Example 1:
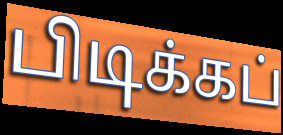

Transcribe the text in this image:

பிடிக்கப்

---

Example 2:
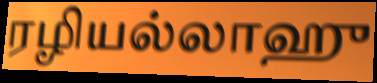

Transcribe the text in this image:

ரழியல்லாஹு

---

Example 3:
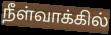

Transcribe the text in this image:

நீள்வாக்கில்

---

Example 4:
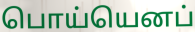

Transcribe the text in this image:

பொய்யெனப்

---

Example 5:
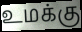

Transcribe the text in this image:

உமக்கு